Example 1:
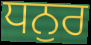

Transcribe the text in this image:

ਧਨੁਰ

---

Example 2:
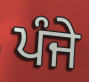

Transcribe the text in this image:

ਪੰਜੇ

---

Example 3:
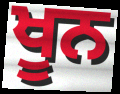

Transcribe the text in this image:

ਖੂਨ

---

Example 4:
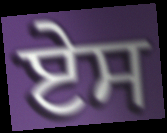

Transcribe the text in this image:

ਏਸ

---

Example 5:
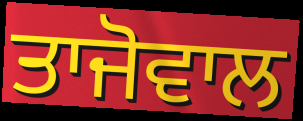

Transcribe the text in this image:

ਤਾਜੋਵਾਲ